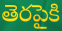
తెరపైకి